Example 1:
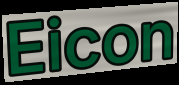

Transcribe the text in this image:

Eicon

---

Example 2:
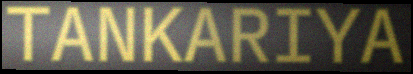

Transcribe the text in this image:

TANKARIYA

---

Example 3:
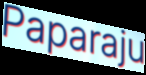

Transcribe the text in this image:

Paparaju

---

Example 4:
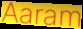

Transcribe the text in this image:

Aaram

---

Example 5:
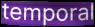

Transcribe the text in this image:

temporal